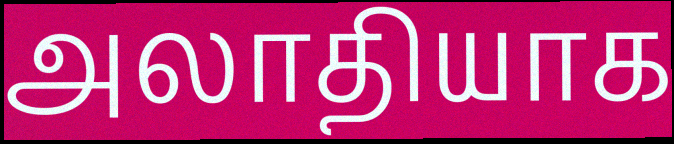
அலாதியாக